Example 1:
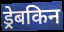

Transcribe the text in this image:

ड्रेबकिन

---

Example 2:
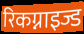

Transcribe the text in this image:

रिकग्नाइज्ड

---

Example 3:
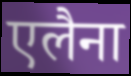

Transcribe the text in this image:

एलैना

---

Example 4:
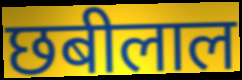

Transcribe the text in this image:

छबीलाल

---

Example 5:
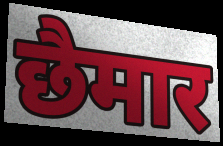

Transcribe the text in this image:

छैमार